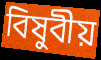
বিষুবীয়